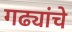
गढ्यांचे